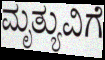
ಮೃತ್ಯುವಿಗೆ